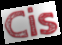
Cis